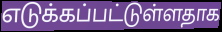
எடுக்கப்பட்டுள்ளதாக